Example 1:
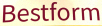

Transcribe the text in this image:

Bestform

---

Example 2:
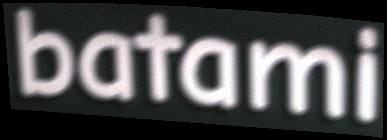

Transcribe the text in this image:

batami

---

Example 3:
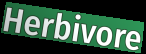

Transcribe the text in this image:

Herbivore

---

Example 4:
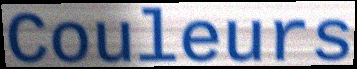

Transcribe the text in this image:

Couleurs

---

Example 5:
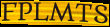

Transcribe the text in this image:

FPLMTS